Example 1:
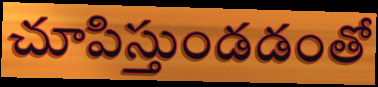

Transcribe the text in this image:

చూపిస్తుండడంతో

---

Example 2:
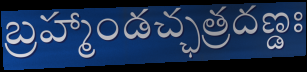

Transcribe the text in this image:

బ్రహ్మాండచ్ఛత్రదణ్డః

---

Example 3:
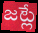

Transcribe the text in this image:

జట్లే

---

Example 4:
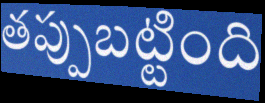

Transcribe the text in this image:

తప్పుబట్టింది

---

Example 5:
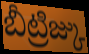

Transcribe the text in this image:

బీట్రిజ్కు